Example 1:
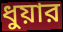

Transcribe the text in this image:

ধুয়ার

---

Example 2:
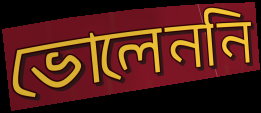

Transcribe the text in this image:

ভোলেননি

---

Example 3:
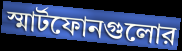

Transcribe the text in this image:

স্মার্টফোনগুলোর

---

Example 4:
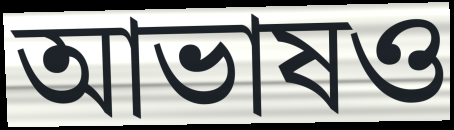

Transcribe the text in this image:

আভাষও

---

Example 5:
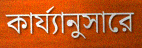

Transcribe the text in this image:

কার্য্যানুসারে